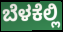
ಬೆಳಕೆಲ್ಲಿ